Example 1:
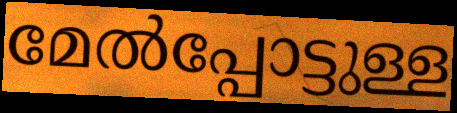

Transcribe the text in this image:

മേൽപ്പോട്ടുള്ള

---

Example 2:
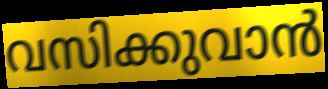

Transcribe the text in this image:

വസിക്കുവാൻ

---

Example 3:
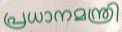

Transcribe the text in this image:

പ്രധാനമന്ത്രി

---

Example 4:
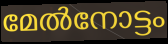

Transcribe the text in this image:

മേൽനോട്ടം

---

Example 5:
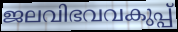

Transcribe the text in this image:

ജലവിഭവവകുപ്പ്